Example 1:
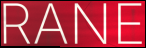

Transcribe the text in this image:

RANE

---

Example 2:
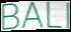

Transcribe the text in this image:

BALI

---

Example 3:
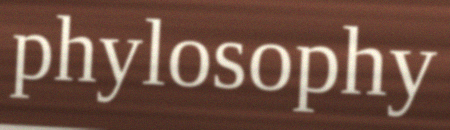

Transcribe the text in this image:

phylosophy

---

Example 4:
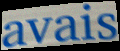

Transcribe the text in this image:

avais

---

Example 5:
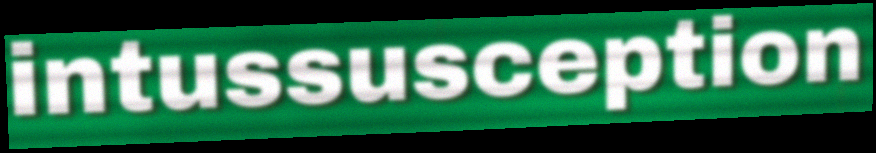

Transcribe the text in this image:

intussusception